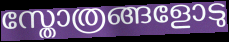
സ്തോത്രങ്ങളോടു